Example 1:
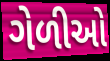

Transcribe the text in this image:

ગેળીઓ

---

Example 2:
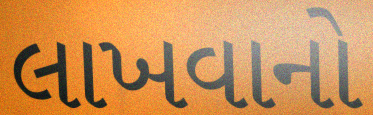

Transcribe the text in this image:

લાખવાનો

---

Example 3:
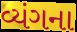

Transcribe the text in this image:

વ્યંગના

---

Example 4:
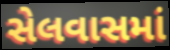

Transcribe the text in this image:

સેલવાસમાં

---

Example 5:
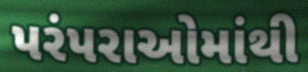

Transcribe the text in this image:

પરંપરાઓમાંથી